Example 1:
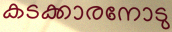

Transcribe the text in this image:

കടക്കാരനോടു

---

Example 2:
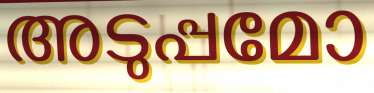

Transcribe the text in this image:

അടുപ്പമോ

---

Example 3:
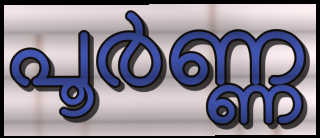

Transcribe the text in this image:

പൂർണ്ണ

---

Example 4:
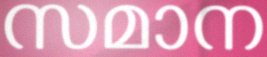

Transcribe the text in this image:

സമാന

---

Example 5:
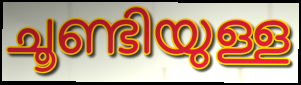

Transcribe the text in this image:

ചൂണ്ടിയുള്ള